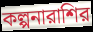
কল্পনারাশির